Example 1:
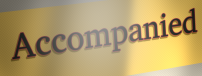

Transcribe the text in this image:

Accompanied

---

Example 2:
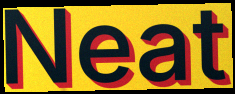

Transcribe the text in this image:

Neat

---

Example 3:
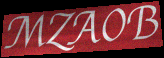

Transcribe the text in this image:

MZAOB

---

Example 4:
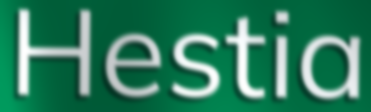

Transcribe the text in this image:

Hestia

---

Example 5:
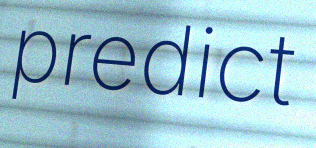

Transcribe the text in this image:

predict